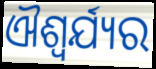
ଐଶ୍ଵର୍ଯ୍ୟର